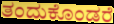
ತಂದುಕೊಂಡರೆ